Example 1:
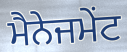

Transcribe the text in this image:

ਮੈਨੇਜਮੇੰਟ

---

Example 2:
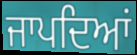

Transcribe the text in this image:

ਜਾਪਦਿਆਂ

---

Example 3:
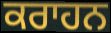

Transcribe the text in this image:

ਕਰਾਹਨ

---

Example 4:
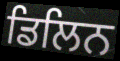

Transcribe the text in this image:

ਡਿਲਿਨ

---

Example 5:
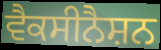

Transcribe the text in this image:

ਵੈਕਸੀਨੈਸ਼ਨ